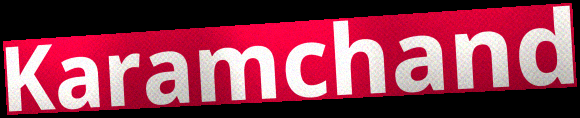
Karamchand